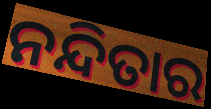
ନନ୍ଦିତାର